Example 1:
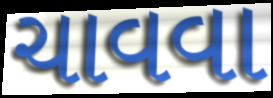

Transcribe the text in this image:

ચાવવા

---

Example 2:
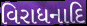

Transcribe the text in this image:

વિરાધનાદિ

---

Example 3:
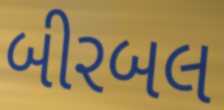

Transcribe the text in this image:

બીરબલ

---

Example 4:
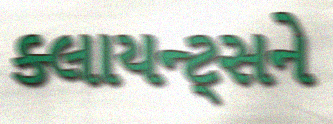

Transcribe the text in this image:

ક્લાયન્ટ્સને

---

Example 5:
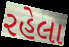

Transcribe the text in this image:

રહેલા